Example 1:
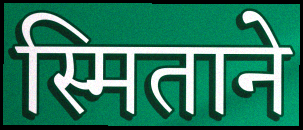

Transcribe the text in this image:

स्मिताने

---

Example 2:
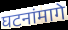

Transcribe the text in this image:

घटनांमागे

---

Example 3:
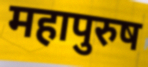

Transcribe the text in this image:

महापुरुष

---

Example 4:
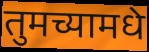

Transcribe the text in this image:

तुमच्यामधे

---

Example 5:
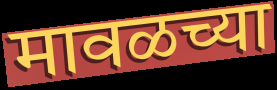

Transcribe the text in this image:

मावळच्या